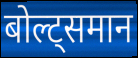
बोल्ट्समान